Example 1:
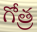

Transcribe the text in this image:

గోత్ర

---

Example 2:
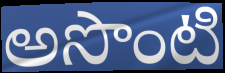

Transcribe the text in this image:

అసొంటి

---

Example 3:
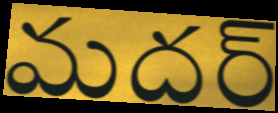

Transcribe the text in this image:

మదర్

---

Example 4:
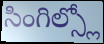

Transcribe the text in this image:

సింగిల్స్లో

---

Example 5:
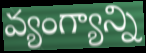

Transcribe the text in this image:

వ్యంగ్యాన్ని